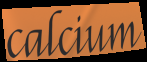
calcium